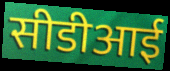
सीडीआई